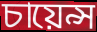
চায়েন্স